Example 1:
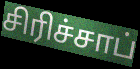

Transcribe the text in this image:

சிரிச்சாப்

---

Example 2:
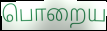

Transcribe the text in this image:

பொறைய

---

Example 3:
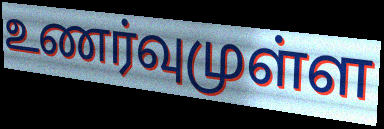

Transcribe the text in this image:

உணர்வுமுள்ள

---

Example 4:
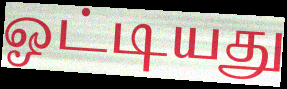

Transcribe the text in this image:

ஓட்டியது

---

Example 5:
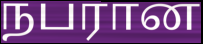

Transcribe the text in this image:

நபரான